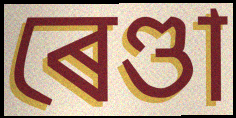
ৰেণ্ডা